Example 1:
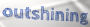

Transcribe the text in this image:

outshining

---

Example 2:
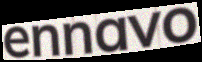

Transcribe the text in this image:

ennavo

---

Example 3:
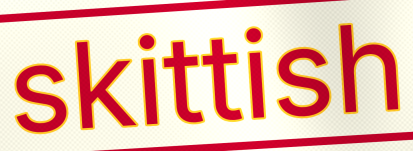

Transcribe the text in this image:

skittish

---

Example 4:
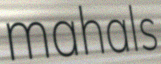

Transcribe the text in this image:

mahals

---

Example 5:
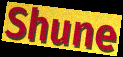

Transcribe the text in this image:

Shune